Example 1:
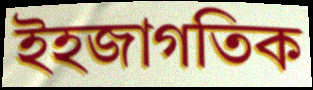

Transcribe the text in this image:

ইহজাগতিক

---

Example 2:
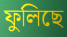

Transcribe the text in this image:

ফুলিছে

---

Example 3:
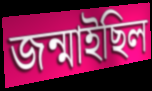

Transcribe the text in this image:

জন্মাইছিল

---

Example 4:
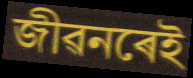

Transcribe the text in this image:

জীৱনৰেই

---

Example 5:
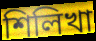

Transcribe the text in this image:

শিলিখা